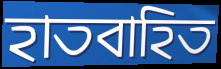
হাতবাহিত